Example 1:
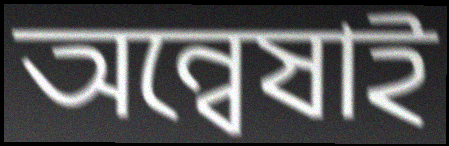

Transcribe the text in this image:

অন্বেষাই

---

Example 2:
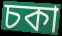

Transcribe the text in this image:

চকা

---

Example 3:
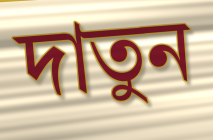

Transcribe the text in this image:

দাতুন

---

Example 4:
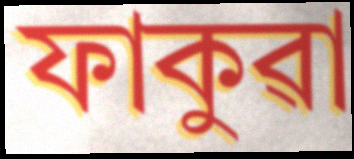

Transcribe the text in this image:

ফাকুৱা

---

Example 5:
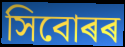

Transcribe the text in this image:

সিবোৰৰ